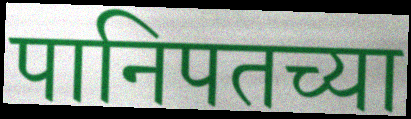
पानिपतच्या